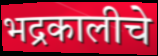
भद्रकालीचे